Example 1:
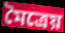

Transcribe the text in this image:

মৈত্রেয়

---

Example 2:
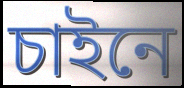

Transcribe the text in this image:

চাইনে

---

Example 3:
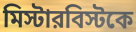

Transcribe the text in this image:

মিস্টারবিস্টকে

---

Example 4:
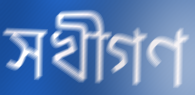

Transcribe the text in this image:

সখীগণ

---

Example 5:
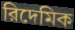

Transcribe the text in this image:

রিদেমিক